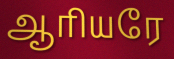
ஆரியரே